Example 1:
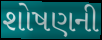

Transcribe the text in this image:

શોષણની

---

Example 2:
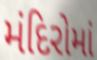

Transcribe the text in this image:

મંદિરોમાં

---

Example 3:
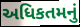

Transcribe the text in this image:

અધિકતમનું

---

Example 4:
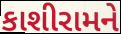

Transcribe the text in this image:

કાશીરામને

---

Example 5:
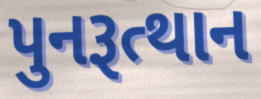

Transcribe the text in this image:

પુનરૂત્થાન